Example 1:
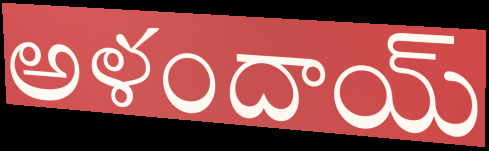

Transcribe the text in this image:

అళందాయ్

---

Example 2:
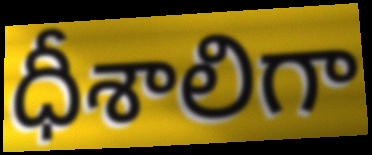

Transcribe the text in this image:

ధీశాలిగా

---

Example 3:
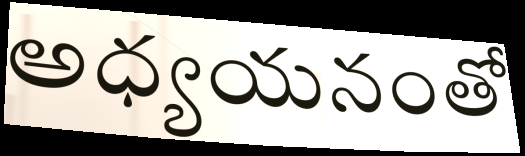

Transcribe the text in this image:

అధ్యయనంతో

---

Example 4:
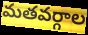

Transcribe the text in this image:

మతవర్గాల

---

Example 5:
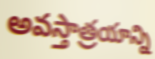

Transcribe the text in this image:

అవస్తాత్రయాన్ని